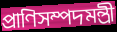
প্রাণিসম্পদমন্ত্রী